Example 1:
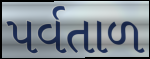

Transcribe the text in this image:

પર્વતાળ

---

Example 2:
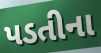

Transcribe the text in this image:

પડતીના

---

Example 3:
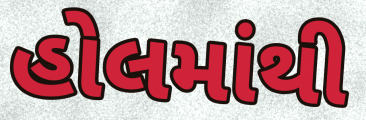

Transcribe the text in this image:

હોલમાંથી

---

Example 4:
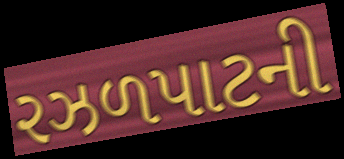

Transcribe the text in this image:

રઝળપાટની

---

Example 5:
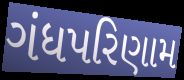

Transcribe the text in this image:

ગંધપરિણામ